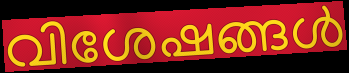
വിശേഷങ്ങൾ